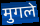
मुगले